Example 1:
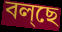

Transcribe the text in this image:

বল্ছে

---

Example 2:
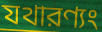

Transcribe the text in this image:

যথারণ্যং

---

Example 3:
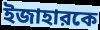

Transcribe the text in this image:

ইজাহারকে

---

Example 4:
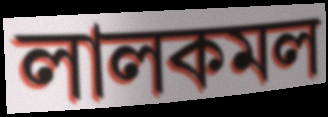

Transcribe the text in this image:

লালকমল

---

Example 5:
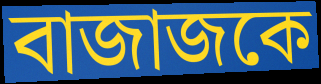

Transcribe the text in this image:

বাজাজকে